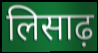
लिसाढ़